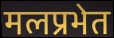
मलप्रभेत